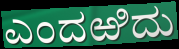
ಎಂದಱಿದು